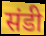
संडी